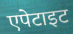
एपेटाइट